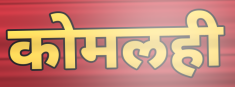
कोमलही